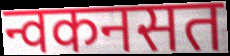
न्वकनसत